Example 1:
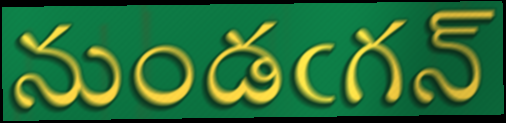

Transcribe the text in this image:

నుండఁగన్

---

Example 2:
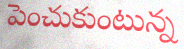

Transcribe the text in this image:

పెంచుకుంటున్న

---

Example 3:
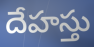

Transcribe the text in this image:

దేహస్తు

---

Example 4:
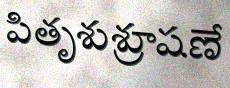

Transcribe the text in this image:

పితృశుశ్రూషణే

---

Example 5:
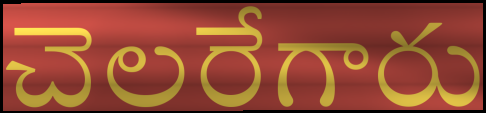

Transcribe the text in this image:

చెలరేగారు